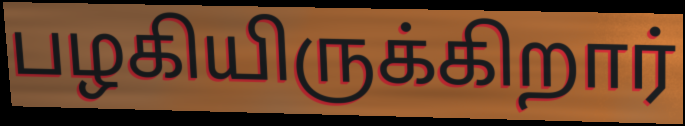
பழகியிருக்கிறார்